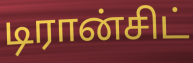
டிரான்சிட்